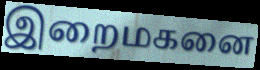
இறைமகனை